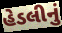
હેડલીનું